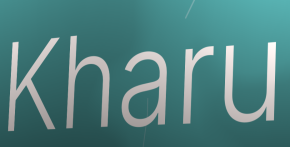
Kharu